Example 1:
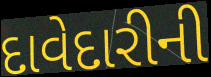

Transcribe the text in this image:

દાવેદારીની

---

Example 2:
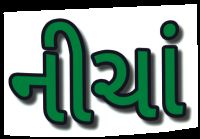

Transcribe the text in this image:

નીચાં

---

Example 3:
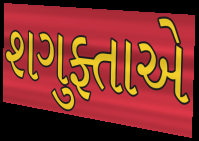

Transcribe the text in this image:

શગુફ્તાએ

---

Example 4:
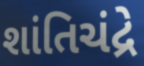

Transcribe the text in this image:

શાંતિચંદ્રે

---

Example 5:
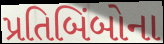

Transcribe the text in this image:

પ્રતિબિંબોના